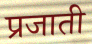
प्रजाती